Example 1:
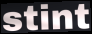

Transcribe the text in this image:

stint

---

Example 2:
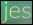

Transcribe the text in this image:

jes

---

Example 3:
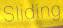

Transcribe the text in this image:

Sliding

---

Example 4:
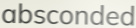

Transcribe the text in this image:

absconded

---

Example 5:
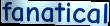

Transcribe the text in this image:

fanatical